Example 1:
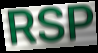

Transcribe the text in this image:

RSP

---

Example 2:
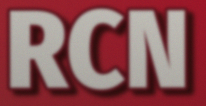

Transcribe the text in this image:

RCN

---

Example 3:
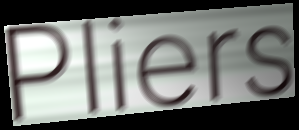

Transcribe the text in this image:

Pliers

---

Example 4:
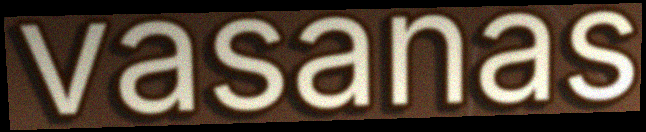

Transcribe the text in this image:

vasanas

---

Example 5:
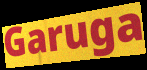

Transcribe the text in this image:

Garuga